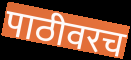
पाठीवरच